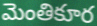
మెంతికూర